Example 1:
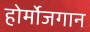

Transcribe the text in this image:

होर्मोजगान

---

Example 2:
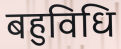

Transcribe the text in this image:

बहुविधि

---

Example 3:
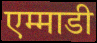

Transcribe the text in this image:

एम्माडी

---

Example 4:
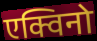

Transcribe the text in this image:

एक्विनो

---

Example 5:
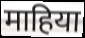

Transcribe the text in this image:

माहिया